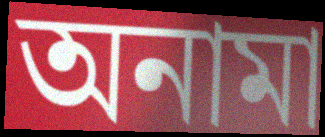
অনামা